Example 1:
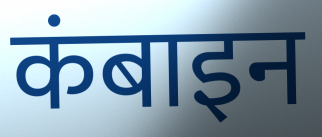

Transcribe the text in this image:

कंबाइन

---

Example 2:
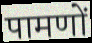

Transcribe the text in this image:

पामणों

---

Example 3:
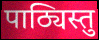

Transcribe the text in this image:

पाठ्यिस्तु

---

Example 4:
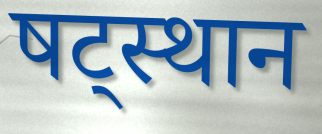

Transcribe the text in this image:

षट्स्थान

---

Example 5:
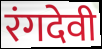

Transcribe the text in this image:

रंगदेवी